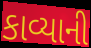
કાવ્યાની